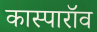
कास्पारॉव